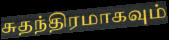
சுதந்திரமாகவும்